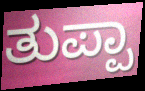
ತುಪ್ಪಾ